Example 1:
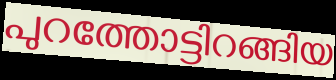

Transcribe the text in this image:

പുറത്തോട്ടിറങ്ങിയ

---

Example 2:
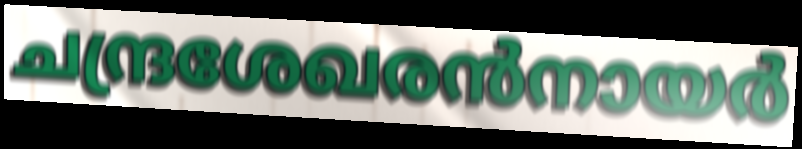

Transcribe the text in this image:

ചന്ദ്രശേഖരൻനായർ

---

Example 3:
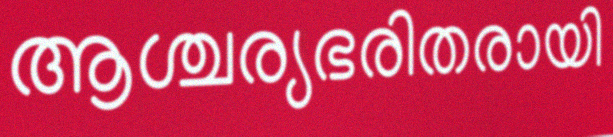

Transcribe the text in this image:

ആശ്ചര്യഭരിതരായി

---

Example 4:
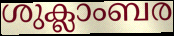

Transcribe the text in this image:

ശുക്ലാംബര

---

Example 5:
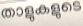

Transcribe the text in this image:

താളുകളുടെ